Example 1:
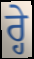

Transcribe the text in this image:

ਰ੍ਹੇ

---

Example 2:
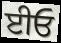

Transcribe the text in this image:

ਈਓ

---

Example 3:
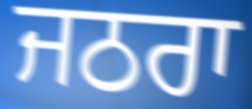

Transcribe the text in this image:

ਜਠਰਾ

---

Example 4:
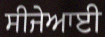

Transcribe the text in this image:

ਸੀਜੇਆਈ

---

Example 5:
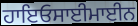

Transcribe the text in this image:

ਹਾਇਓਸਾਈਮਾਈਨ